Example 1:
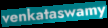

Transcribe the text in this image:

venkataswamy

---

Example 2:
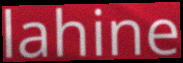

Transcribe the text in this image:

lahine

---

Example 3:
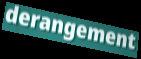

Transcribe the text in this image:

derangement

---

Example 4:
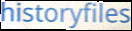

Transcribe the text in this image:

historyfiles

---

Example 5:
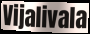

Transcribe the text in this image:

Vijalivala